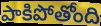
పాకిపోతోంది